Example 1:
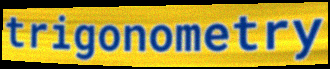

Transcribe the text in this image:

trigonometry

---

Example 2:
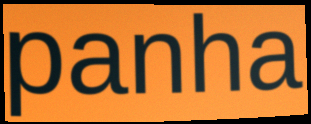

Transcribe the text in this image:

panha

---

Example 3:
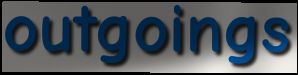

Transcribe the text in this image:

outgoings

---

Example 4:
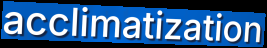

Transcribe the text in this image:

acclimatization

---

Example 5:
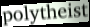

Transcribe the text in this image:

polytheist